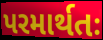
પરમાર્થતઃ